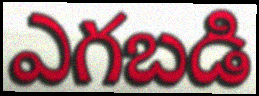
ఎగబడి